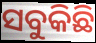
ସବୁକିଛି